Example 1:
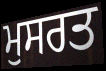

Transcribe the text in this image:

ਮੁਸਰਤ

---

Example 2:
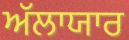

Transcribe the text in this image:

ਅੱਲਾਯਾਰ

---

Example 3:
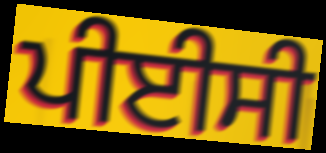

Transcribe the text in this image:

ਪੀਈਸੀ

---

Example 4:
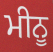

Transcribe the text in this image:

ਮੀਨੂ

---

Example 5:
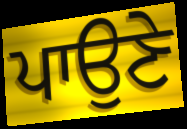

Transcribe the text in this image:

ਪਾਉਣੇ